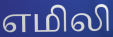
எமிலி